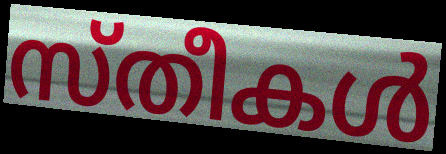
സ്തീകൾ